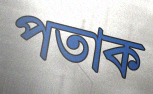
পতাক